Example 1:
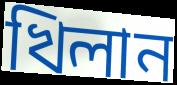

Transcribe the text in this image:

খিলান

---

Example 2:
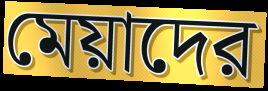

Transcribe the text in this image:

মেয়াদের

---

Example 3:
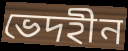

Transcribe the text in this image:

ভেদহীন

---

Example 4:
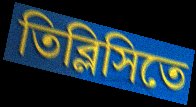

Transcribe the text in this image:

তিব্লিসিতে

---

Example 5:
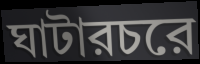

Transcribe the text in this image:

ঘাটারচরে